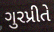
ગુરપ્રીતે